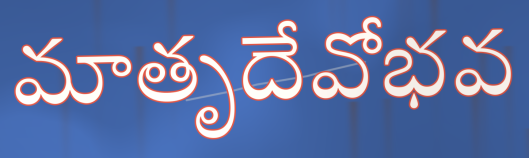
మాతృదేవోభవ